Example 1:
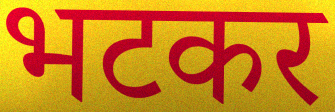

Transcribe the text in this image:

भटकर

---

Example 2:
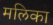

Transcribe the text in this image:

मलिका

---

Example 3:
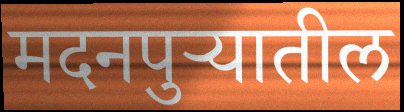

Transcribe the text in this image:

मदनपुऱ्यातील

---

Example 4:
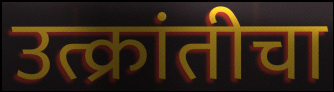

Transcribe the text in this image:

उत्क्रांतीचा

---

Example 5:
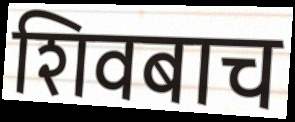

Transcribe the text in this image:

शिवबाच